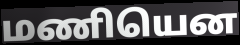
மணியென